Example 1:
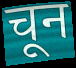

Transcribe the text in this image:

चून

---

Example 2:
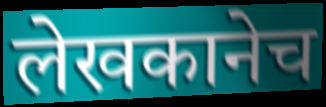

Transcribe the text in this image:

लेखकानेच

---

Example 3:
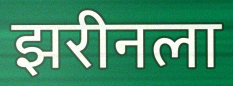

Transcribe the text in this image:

झरीनला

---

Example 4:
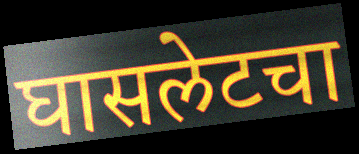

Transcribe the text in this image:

घासलेटचा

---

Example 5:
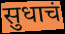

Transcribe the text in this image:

सुधाचं